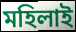
মহিলাই